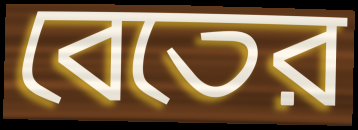
বেতের